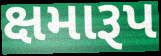
ક્ષમારૂપ